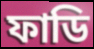
ফাডি